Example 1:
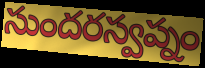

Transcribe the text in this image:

సుందరస్వప్నం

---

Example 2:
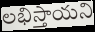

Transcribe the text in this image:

లభిస్తాయని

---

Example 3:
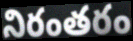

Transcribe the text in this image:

నిరంతరం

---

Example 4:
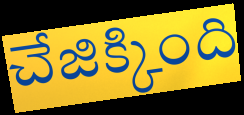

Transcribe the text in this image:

చేజిక్కింది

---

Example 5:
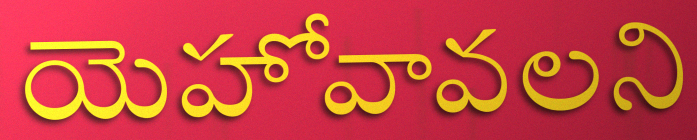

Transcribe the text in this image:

యెహోవావలని